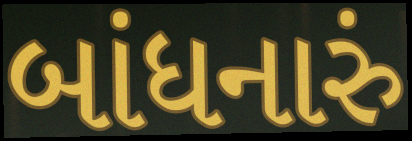
બાંધનારું